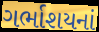
ગર્ભાશયનાં